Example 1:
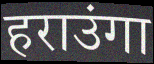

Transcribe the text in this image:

हराउंगा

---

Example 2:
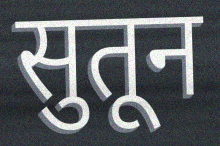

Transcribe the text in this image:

सुतून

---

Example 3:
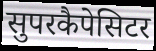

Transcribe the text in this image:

सुपरकैपेसिटर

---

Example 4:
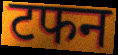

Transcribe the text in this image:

टफन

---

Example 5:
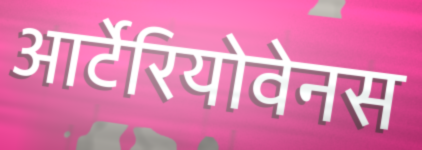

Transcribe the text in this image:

आर्टेरियोवेनस